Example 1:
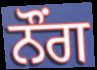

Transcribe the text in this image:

ਨੌਂਗ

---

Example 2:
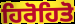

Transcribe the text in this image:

ਹਿਰੋਹਿਤੋ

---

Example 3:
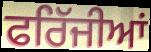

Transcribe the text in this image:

ਫਰਿੱਜੀਆਂ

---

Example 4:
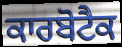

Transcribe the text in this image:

ਕਾਰਬੋਟੈਕ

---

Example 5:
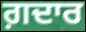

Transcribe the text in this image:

ਗ਼ਦਾਰ